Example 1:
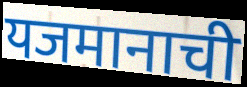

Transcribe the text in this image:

यजमानाची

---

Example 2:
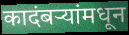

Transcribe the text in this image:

कादंबर्‍यांमधून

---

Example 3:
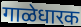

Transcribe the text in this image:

गाळेधारक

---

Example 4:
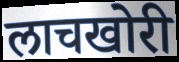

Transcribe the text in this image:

लाचखोरी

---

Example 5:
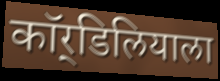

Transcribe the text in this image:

कॉर्डिलियाला